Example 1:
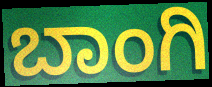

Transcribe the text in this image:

ಬಾಂಗಿ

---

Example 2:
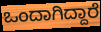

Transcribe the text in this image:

ಒಂದಾಗಿದ್ದಾರೆ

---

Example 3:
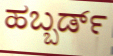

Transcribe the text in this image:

ಹಬ್ಬರ್ಡ್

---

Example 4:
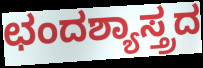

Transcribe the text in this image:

ಛಂದಶ್ಯಾಸ್ತ್ರದ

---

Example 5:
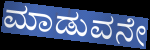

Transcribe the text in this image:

ಮಾಡುವನೇ